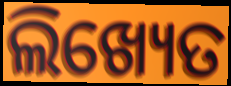
ଲିଖ୍ଯେତ